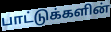
பாட்டுக்களின்